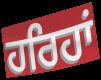
ਹਰਿਹਾਂ